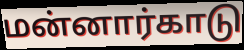
மன்னார்காடு